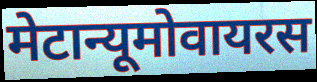
मेटान्यूमोवायरस